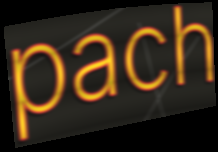
pach